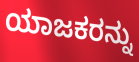
ಯಾಜಕರನ್ನು